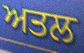
ਅਤਲ